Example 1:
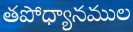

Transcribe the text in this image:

తపోధ్యానముల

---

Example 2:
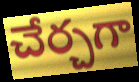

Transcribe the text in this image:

చేర్చగా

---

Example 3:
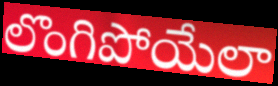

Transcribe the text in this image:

లొంగిపోయేలా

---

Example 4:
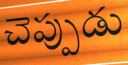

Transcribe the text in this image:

చెప్పుడు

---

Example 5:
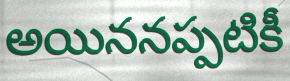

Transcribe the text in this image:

అయిననప్పటికీ